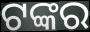
ଟଙ୍କର